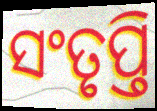
ସଂତୃପ୍ତି